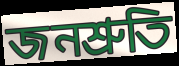
জনশ্ৰুতি